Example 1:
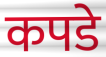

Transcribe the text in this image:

कपडे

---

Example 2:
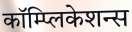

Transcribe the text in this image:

कॉम्प्लिकेशन्स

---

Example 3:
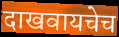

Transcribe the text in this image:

दाखवायचेच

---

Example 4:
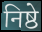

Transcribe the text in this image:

निष्ठे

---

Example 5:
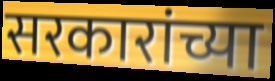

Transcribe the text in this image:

सरकारांच्या